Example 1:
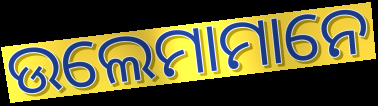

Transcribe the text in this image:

ଉଲେମାମାନେ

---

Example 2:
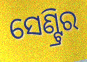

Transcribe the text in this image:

ସେଣ୍ଟ୍ରିର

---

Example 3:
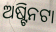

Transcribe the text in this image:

ଅଷ୍ଟିନଟା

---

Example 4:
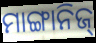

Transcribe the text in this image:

ମାଙ୍ଗାନିଜ୍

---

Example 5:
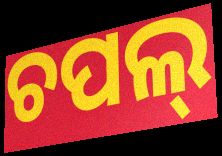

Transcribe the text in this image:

ଚପଲ୍